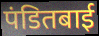
पंडितबाई